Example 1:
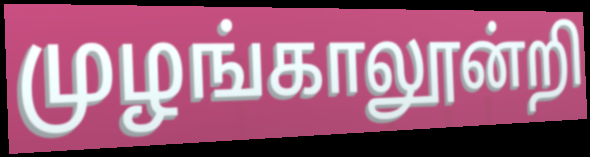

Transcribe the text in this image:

முழங்காலூன்றி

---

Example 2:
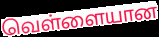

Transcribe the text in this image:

வெள்ளையான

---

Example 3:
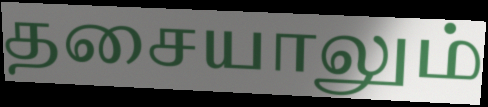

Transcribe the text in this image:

தசையாலும்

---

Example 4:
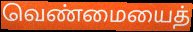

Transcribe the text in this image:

வெண்மையைத்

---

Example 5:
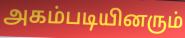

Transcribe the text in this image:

அகம்படியினரும்